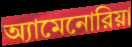
অ্যামেনোরিয়া